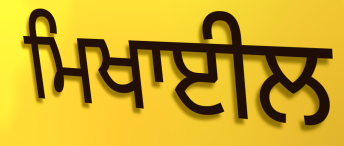
ਮਿਖਾਈਲ